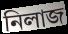
নিলাজ